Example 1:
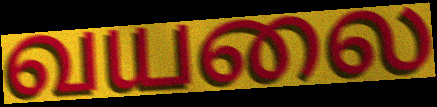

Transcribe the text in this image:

வயலை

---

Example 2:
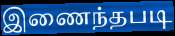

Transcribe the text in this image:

இணைந்தபடி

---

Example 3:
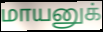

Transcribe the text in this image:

மாயனுக்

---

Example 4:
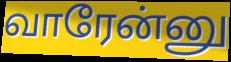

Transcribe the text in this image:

வாரேன்னு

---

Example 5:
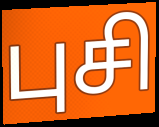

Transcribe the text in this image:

புசி